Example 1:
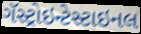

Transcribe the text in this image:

ગૅસ્ટ્રોઇન્ટેસ્ટાઇનલ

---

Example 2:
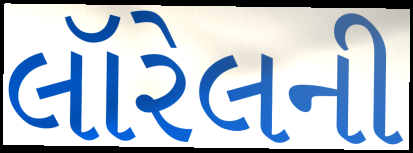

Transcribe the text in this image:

લૉરેલની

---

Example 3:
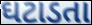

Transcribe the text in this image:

ઘટાડતા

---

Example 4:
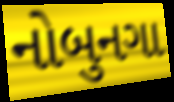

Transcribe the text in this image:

નોબુનગા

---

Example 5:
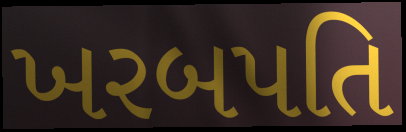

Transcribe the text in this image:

ખરબપતિ